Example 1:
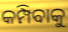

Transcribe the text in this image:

କମ୍ପିବାକୁ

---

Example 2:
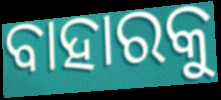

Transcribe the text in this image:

ବାହାରକୁ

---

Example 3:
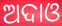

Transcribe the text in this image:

ଅଦାଓ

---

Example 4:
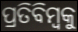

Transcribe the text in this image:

ପ୍ରତିବିମ୍ବକୁ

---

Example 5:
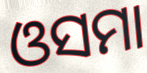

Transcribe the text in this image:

ଓସମା